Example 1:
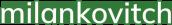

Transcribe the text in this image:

milankovitch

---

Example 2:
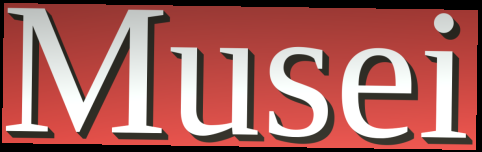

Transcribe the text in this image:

Musei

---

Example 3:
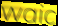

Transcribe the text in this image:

waic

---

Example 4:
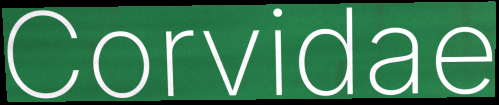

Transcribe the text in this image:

Corvidae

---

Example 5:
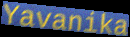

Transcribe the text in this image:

Yavanika